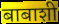
बाबाशी